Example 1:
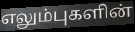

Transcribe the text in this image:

எலும்புகளின்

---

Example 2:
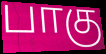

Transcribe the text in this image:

பாகு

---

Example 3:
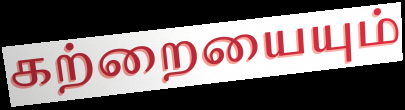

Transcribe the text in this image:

கற்றையையும்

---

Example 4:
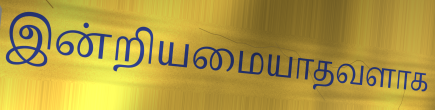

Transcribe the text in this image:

இன்றியமையாதவளாக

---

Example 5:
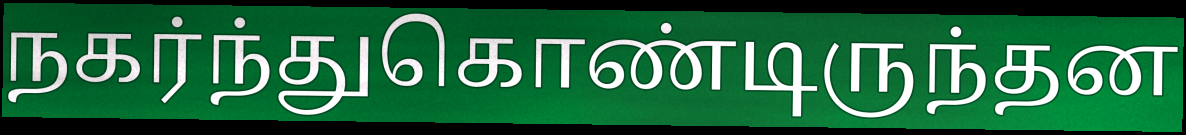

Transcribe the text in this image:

நகர்ந்துகொண்டிருந்தன